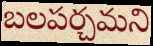
బలపర్చమని